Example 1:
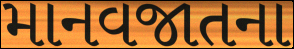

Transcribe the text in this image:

માનવજાતના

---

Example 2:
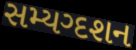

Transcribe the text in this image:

સમ્યગ્દશન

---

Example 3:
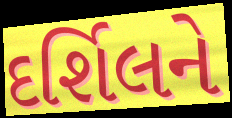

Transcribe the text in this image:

દર્શિલને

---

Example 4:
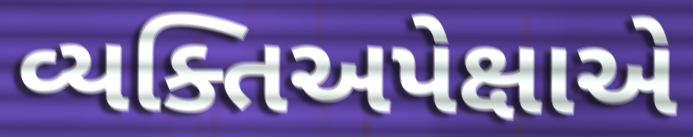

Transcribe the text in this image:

વ્યક્તિઅપેક્ષાએ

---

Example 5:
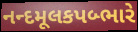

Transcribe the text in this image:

નન્દમૂલકપબ્ભારે